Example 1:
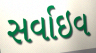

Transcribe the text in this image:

સર્વાઇવ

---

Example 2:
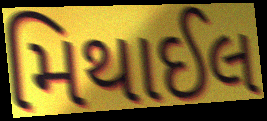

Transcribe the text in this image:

મિથાઈલ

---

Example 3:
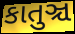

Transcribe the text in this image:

કાતુઞ્ચ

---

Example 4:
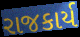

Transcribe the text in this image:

રાજકાર્ય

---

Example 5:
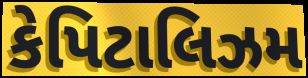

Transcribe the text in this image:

કેપિટાલિઝમ